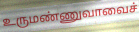
உருமண்ணுவாவைச்